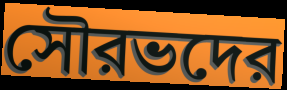
সৌরভদের